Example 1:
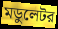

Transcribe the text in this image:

মডুলেটর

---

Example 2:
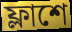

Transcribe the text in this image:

ফ্লাশে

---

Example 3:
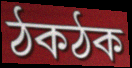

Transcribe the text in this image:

ঠকঠক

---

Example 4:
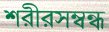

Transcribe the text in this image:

শরীরসম্বন্ধ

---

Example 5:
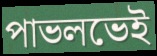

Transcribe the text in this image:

পাভলভেই